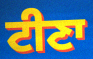
ਟੀਣਾ